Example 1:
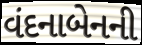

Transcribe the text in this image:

વંદનાબેનની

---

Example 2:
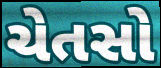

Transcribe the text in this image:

ચેતસો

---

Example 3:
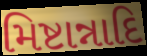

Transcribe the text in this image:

મિષ્ટાન્નાદિ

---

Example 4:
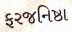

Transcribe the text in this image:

ફરજનિષ્ઠા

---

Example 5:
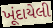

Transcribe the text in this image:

ખૂંદાયેલી